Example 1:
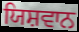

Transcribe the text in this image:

ਯਿਸ਼ਵਾਨ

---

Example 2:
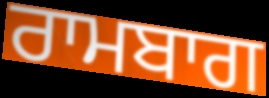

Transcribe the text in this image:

ਰਾਮਬਾਗ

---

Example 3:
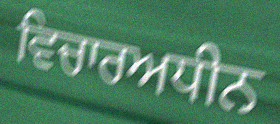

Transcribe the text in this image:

ਵਿਚਾਰਅਧੀਨ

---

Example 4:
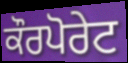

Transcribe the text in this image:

ਕੌਰਪੋਰੇਟ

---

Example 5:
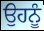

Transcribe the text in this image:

ਉਹਨੂੰ